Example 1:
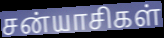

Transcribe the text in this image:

சன்யாசிகள்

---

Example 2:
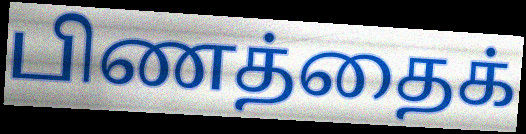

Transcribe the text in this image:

பிணத்தைக்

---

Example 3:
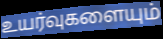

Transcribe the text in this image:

உயர்வுகளையும்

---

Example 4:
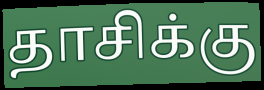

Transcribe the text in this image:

தாசிக்கு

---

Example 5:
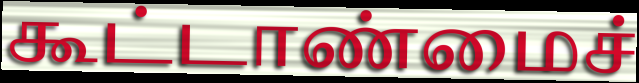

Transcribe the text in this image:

கூட்டாண்மைச்